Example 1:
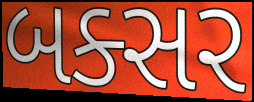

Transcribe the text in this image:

બક્સર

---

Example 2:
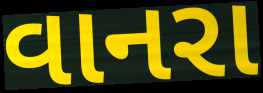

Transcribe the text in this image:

વાનરા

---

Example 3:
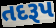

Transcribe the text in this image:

તદરૂપ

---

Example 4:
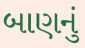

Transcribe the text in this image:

બાણનું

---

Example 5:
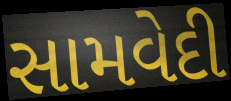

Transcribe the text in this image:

સામવેદી